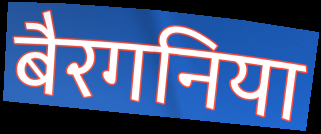
बैरगनिया